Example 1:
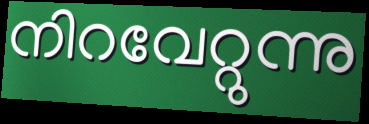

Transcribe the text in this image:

നിറവേറ്റുന്നു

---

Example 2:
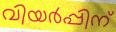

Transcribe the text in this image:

വിയർപ്പിന്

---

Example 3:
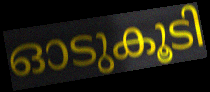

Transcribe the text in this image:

ഓടുകൂടി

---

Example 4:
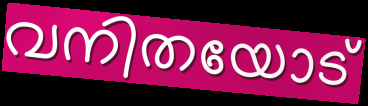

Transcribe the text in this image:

വനിതയോട്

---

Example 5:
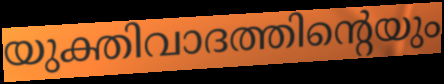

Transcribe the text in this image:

യുക്തിവാദത്തിന്റെയും